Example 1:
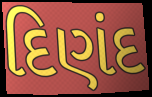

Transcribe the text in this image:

દિણંદ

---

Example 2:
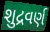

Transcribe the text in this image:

શુદ્રવર્ણ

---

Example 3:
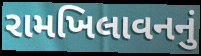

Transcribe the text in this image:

રામખિલાવનનું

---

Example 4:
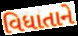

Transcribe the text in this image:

વિધાતાને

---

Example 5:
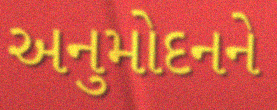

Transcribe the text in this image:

અનુમોદનને